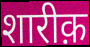
शारीक़